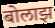
बोलाझ